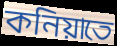
কনিয়াতে